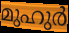
മുഹുർ